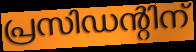
പ്രസിഡന്റിന്